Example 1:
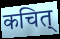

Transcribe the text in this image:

कचित्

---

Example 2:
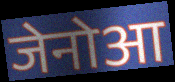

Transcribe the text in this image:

जेनोआ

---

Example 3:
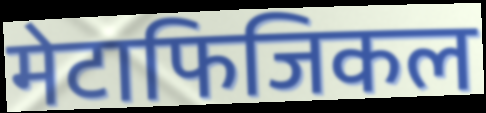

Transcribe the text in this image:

मेटाफिजिकल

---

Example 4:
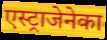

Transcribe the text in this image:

एस्ट्राजेनेका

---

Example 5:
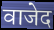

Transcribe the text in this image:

वाजेद